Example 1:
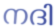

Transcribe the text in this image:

നദി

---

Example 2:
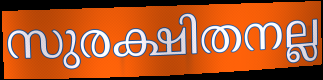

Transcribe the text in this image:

സുരക്ഷിതനല്ല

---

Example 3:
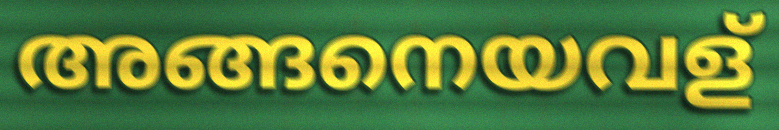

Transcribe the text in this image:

അങ്ങനെയവള്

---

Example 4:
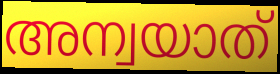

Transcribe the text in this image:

അന്വയാത്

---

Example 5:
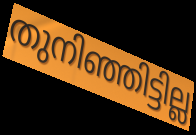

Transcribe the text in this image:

തുനിഞ്ഞിട്ടില്ല